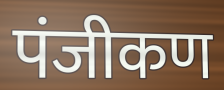
पंजीकण